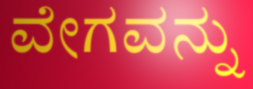
ವೇಗವನ್ನು